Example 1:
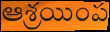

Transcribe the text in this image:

ఆశ్రయింప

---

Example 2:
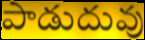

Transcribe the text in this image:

పాడుదువు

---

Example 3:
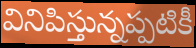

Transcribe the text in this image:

వినిపిస్తున్నప్పటికీ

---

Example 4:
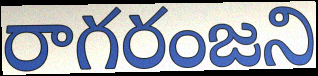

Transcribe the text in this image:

రాగరంజని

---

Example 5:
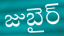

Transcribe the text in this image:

జుబైర్